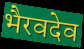
भैरवदेव